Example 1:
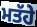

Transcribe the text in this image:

ਮਤੱਹੇ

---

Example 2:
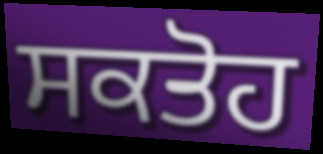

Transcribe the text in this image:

ਸਕਤੋਹ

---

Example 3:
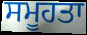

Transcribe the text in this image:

ਸਮੂਹਤਾ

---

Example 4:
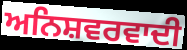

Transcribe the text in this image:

ਅਨਿਸ਼ਵਰਵਾਦੀ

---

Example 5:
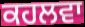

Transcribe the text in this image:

ਕਹਲਵਾ